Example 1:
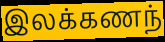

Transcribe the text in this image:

இலக்கணந்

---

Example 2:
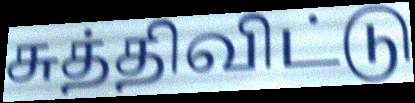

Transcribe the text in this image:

சுத்திவிட்டு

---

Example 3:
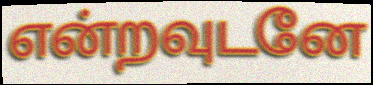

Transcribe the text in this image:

என்றவுடனே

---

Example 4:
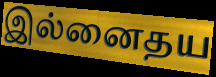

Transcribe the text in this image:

இல்னைதய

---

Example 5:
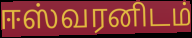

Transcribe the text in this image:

ஈஸ்வரனிடம்